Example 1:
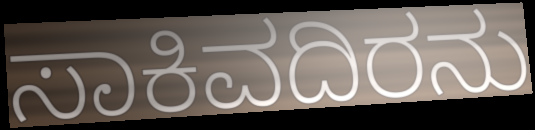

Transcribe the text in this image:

ಸಾಕಿವದಿರನು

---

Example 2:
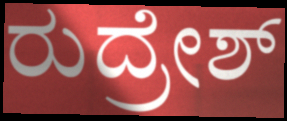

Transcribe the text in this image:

ರುದ್ರೇಶ್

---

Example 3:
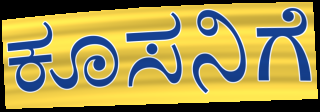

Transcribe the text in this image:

ಕೂಸನಿಗೆ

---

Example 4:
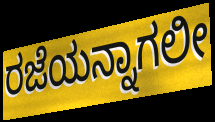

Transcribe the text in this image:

ರಜೆಯನ್ನಾಗಲೀ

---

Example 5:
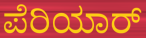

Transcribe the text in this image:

ಪೆರಿಯಾರ್